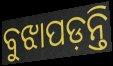
ବୁଝାପଡ଼ନ୍ତି